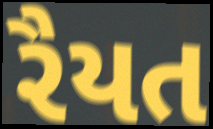
રૈયત